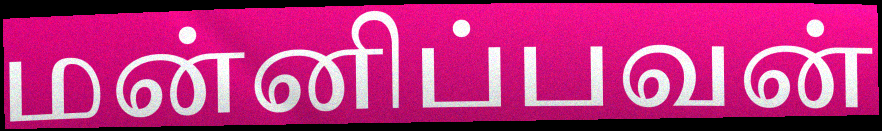
மன்னிப்பவன்